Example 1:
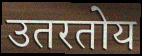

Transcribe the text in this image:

उतरतोय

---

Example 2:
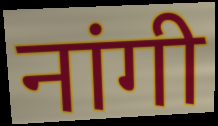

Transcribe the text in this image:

नांगी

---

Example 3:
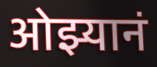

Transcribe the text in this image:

ओझ्यानं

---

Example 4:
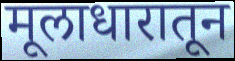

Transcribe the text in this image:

मूलाधारातून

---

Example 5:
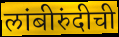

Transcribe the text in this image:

लांबीरुंदीची